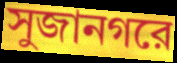
সুজানগরে